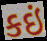
કઇં